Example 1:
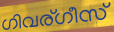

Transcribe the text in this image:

ഗിവര്ഗീസ്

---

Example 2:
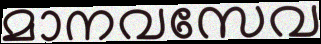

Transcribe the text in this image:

മാനവസേവ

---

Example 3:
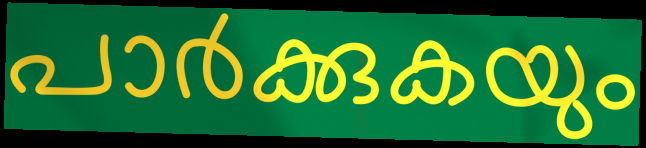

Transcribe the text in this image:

പാർക്കുകയും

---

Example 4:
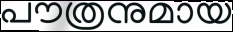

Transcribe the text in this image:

പൗത്രനുമായ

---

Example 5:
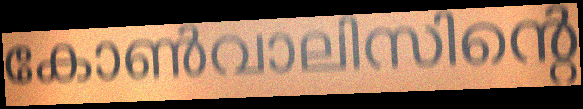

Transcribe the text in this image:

കോൺവാലിസിന്റെ